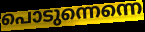
പൊടുന്നെന്നെ